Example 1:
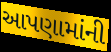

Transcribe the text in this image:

આપણામાંની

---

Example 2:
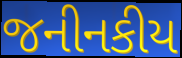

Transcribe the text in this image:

જનીનકીય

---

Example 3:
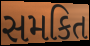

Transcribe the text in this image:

સમકિત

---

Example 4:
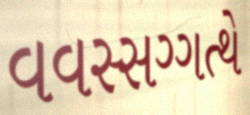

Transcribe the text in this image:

વવસ્સગ્ગત્થે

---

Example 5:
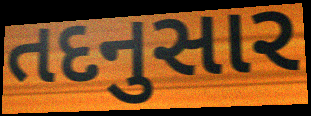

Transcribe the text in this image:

તદનુસાર